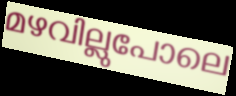
മഴവില്ലുപോലെ